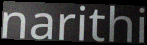
narithi